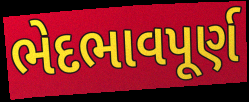
ભેદભાવપૂર્ણ